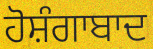
ਹੋਸ਼ੰਗਾਬਾਦ